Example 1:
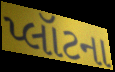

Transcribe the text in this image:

પ્લૉટના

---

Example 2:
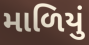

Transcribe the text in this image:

માળિયું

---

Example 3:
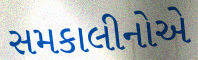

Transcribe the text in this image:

સમકાલીનોએ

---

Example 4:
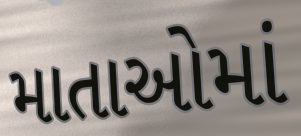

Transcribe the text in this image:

માતાઓમાં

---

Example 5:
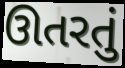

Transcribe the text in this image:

ઊતરતું